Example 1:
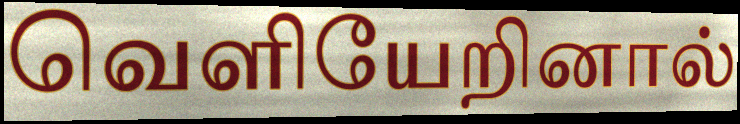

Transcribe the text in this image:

வெளியேறினால்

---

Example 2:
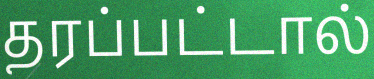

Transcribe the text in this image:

தரப்பட்டால்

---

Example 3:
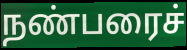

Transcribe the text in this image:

நண்பரைச்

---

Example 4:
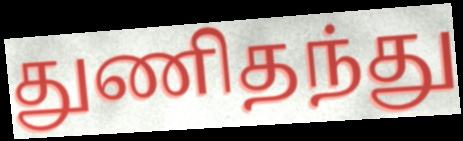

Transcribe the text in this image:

துணிதந்து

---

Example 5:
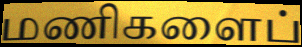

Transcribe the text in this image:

மணிகளைப்